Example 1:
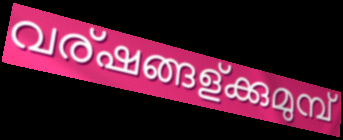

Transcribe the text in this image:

വര്ഷങ്ങള്ക്കുമുമ്പ്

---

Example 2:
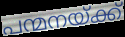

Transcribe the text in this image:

പന്മനയ്ക്ക്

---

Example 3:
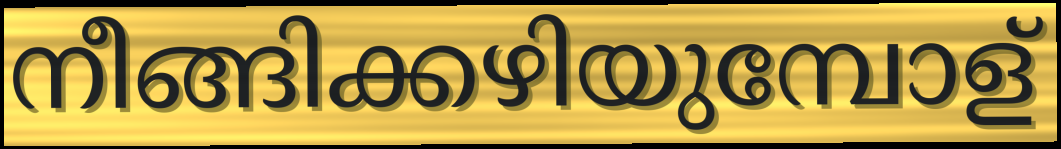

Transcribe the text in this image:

നീങ്ങിക്കഴിയുമ്പോള്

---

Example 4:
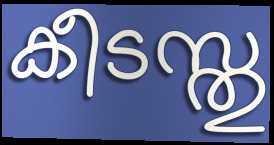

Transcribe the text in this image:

കീടസ്തു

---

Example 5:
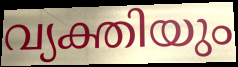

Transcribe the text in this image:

വ്യക്തിയും